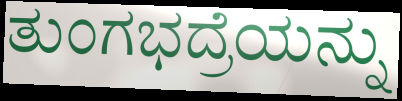
ತುಂಗಭದ್ರೆಯನ್ನು